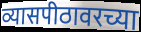
व्यासपीठावरच्या